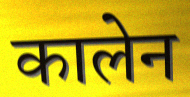
कालेन